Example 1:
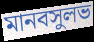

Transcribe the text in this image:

মানবসুলভ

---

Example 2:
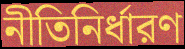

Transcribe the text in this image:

নীতিনির্ধারণ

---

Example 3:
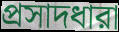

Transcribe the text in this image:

প্রসাদধারা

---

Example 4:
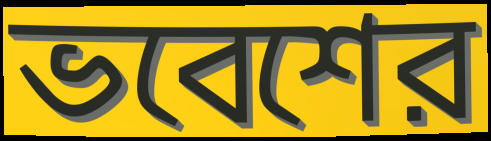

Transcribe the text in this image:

ভবেশের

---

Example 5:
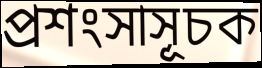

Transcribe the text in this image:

প্রশংসাসূচক